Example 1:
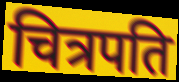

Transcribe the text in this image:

चित्रपति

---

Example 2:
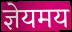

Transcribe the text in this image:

ज्ञेयमय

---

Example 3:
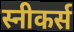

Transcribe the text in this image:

स्नीकर्स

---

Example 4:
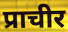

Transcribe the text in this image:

प्राचीर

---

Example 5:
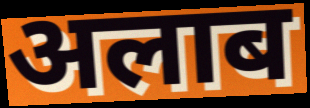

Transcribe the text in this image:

अलाब